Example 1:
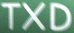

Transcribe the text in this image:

TXD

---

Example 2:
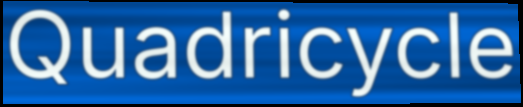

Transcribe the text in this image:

Quadricycle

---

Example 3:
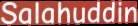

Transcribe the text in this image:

Salahuddin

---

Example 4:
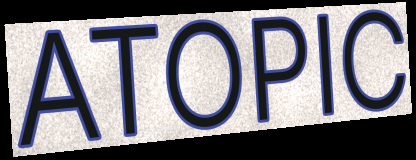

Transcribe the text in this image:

ATOPIC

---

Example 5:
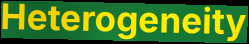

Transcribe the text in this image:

Heterogeneity